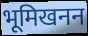
भूमिखनन